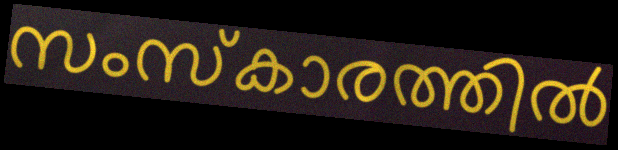
സംസ്കാരത്തിൽ